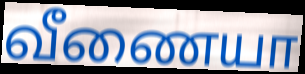
வீணையா